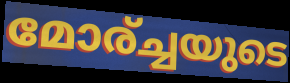
മോര്ച്ചയുടെ